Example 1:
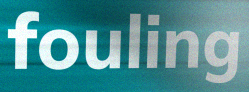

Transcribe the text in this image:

fouling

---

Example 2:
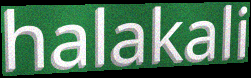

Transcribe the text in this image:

halakali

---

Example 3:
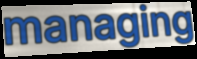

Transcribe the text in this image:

managing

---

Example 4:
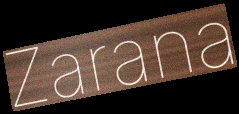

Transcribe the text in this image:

Zarana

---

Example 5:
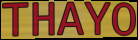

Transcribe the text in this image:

THAYO